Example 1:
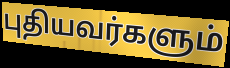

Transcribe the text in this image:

புதியவர்களும்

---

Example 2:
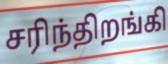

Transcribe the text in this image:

சரிந்திறங்கி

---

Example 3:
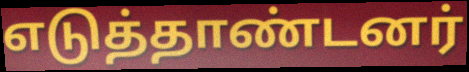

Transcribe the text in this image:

எடுத்தாண்டனர்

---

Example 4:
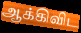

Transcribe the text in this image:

ஆக்கிவிட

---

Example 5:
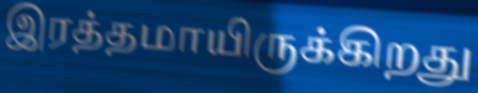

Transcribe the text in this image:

இரத்தமாயிருக்கிறது